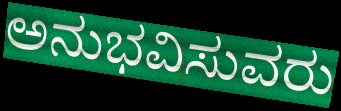
ಅನುಭವಿಸುವರು